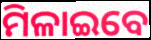
ମିଳାଇବେ